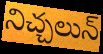
నిచ్చలున్